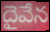
దైవేన